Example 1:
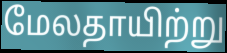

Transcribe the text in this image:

மேலதாயிற்று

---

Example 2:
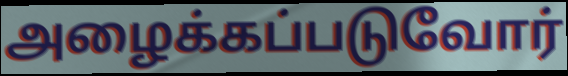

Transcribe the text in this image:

அழைக்கப்படுவோர்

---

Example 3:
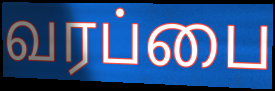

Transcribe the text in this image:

வரப்பை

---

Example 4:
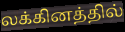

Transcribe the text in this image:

லக்கினத்தில்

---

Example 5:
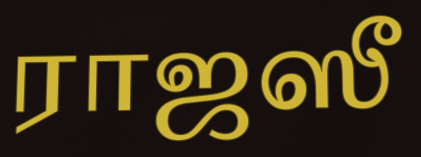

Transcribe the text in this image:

ராஜஸீ